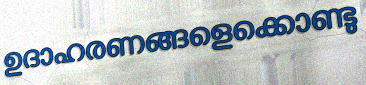
ഉദാഹരണങ്ങളെക്കൊണ്ടു